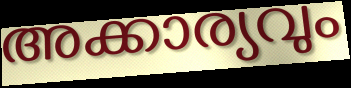
അക്കാര്യവും